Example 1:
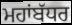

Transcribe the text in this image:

ਮਹਾਂਬੱਧਰ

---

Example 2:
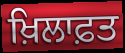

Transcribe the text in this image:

ਖ਼ਿਲਾਫ਼ਤ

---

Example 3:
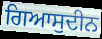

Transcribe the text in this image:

ਗਿਆਸੁਦੀਨ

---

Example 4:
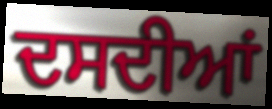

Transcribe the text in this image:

ਦਸਦੀਆਂ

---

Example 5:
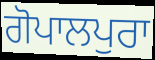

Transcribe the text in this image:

ਗੋਪਾਲਪੁਰਾ